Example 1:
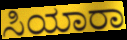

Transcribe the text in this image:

ಸಿಯಾರಾ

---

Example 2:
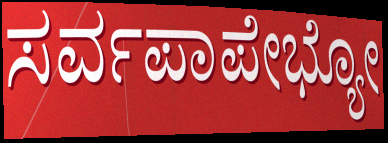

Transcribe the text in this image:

ಸರ್ವಪಾಪೇಭ್ಯೋ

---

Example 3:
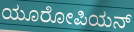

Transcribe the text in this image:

ಯೂರೋಪಿಯನ್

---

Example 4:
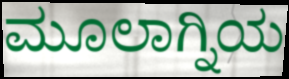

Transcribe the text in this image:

ಮೂಲಾಗ್ನಿಯ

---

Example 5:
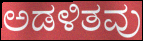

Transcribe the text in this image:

ಅಡಳಿತವು